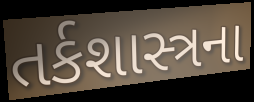
તર્કશાસ્ત્રના